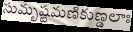
సుమృష్టమణికుణ్డలాః